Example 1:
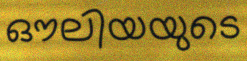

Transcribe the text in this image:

ഔലിയയുടെ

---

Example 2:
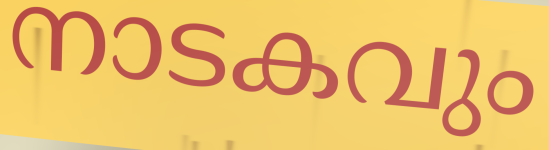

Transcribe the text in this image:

നാടകവും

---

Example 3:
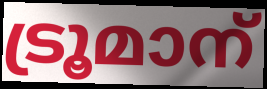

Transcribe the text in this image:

ട്രൂമാന്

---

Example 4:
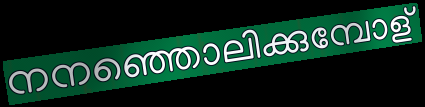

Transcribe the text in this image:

നനഞ്ഞൊലിക്കുമ്പോള്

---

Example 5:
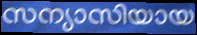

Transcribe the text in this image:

സന്യാസിയായ